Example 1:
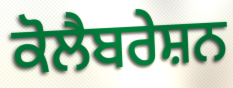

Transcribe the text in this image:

ਕੋਲੈਬਰੇਸ਼ਨ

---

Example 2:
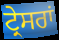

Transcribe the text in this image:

ਟ੍ਰੇਸਰਾਂ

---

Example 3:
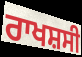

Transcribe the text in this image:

ਰਾਖਸ਼ਸੀ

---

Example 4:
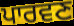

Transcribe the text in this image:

ਪਾਰਵਣ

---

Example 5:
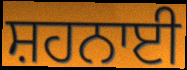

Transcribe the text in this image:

ਸ਼ਹਨਾਈ